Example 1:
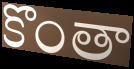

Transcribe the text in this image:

కొంతా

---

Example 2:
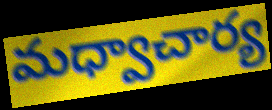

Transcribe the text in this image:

మధ్వాచార్య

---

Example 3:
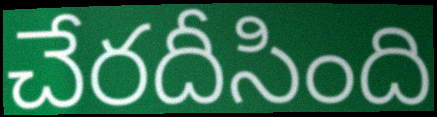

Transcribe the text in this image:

చేరదీసింది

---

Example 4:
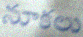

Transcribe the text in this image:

నూకలు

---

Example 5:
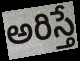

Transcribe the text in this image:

అరిస్తే